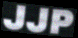
JJP